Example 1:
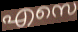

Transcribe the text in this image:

എസെ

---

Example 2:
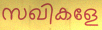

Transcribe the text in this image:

സഖികളേ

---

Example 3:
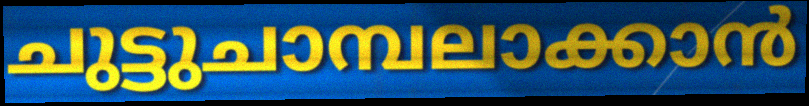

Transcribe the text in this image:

ചുട്ടുചാമ്പലാക്കാൻ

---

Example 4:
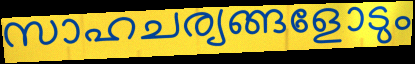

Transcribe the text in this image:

സാഹചര്യങ്ങളോടും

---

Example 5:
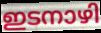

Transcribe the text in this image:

ഇടനാഴി